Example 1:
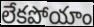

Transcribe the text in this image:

లేకపోయాం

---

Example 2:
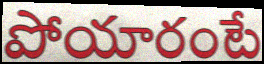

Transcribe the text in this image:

పోయారంటే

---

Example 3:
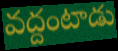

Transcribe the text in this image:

వద్దంటాడు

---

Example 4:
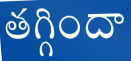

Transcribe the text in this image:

తగ్గిందా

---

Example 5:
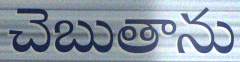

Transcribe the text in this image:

చెబుతాను